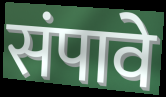
संपावे